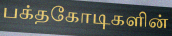
பக்தகோடிகளின்